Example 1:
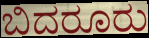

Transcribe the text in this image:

ಬಿದರೂರು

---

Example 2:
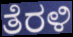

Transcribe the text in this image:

ತೆರಳಿ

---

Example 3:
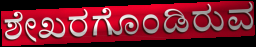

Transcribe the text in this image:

ಶೇಖರಗೊಂಡಿರುವ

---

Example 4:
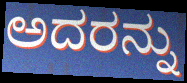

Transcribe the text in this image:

ಅದರನ್ನು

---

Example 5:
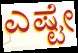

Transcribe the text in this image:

ಎಷ್ಟೇ